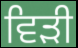
ਵਿੜੀ